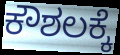
ಕೌಶಲಕ್ಕೆ